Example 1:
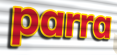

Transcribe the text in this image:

parra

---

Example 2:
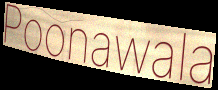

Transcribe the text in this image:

Poonawala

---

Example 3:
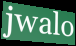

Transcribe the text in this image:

jwalo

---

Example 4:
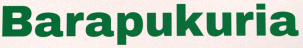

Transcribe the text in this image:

Barapukuria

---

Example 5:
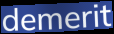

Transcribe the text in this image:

demerit